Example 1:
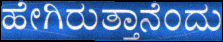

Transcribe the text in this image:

ಹೇಗಿರುತ್ತಾನೆಂದು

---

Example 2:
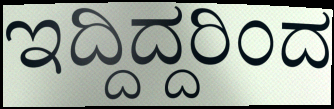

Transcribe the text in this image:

ಇದ್ದಿದ್ದರಿಂದ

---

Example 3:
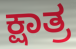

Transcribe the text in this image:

ಕ್ಷಾತ್ರ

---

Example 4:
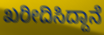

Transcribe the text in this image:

ಖರೀದಿಸಿದ್ದಾನೆ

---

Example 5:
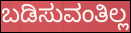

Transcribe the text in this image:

ಬಡಿಸುವಂತಿಲ್ಲ